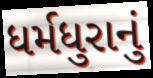
ધર્મધુરાનું